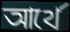
আর্থে